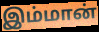
இம்மான்